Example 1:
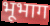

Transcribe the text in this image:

भूभाग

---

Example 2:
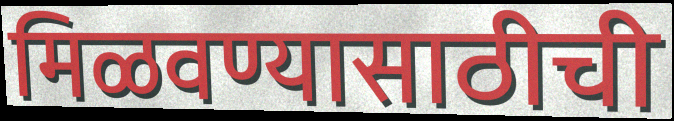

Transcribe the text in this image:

मिळवण्यासाठीची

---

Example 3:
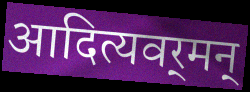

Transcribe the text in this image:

आदित्यवर्मन्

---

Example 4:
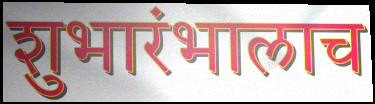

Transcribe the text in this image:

शुभारंभालाच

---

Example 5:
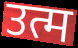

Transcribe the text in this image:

उत्म